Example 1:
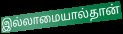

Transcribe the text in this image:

இல்லாமையால்தான்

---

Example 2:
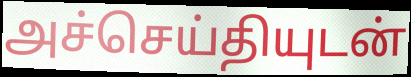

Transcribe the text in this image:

அச்செய்தியுடன்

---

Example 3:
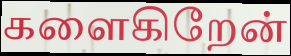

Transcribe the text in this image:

களைகிறேன்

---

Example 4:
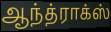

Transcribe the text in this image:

ஆந்த்ராக்ஸ்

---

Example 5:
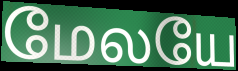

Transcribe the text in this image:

மேலயே